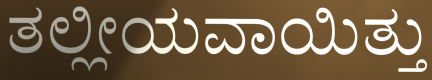
ತಲ್ಲೀಯವಾಯಿತ್ತು